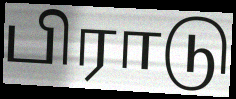
பிராடு